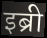
इब्री